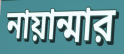
নায়ান্মার